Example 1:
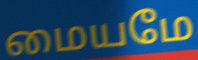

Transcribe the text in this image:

மையமே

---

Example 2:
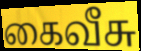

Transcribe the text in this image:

கைவீசு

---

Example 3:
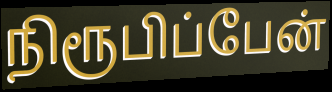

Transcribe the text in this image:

நிரூபிப்பேன்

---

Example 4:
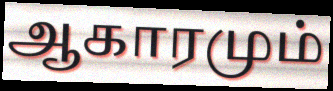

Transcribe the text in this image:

ஆகாரமும்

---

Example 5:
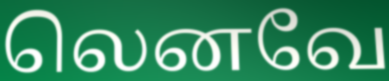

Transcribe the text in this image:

லெனவே